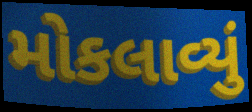
મોકલાવ્યું